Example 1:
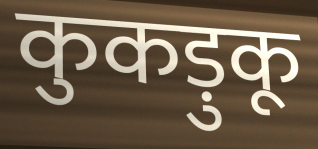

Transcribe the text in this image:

कुकड़ुकू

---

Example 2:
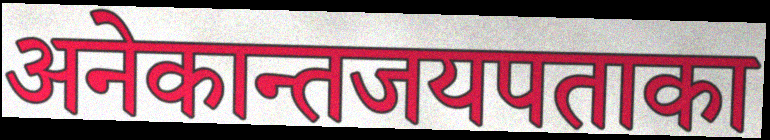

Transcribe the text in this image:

अनेकान्तजयपताका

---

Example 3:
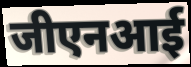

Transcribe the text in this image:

जीएनआई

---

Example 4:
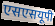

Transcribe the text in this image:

एसएसयूपी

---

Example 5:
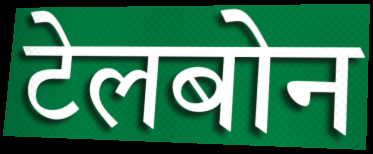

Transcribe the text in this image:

टेलबोन